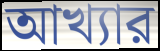
আখ্যার